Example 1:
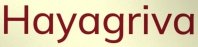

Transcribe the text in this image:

Hayagriva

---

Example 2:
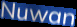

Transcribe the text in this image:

Nuwan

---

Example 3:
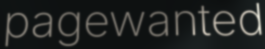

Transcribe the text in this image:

pagewanted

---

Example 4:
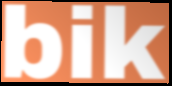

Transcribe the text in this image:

bik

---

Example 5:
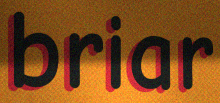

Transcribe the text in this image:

briar